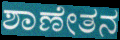
ಶಾಣೇತನ